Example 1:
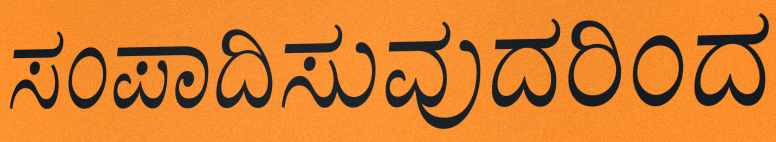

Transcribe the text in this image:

ಸಂಪಾದಿಸುವುದರಿಂದ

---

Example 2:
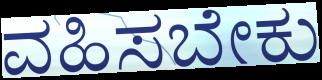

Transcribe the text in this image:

ವಹಿಸಬೇಕು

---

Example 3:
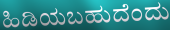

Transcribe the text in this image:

ಹಿಡಿಯಬಹುದೆಂದು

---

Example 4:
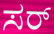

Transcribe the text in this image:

ಸರ್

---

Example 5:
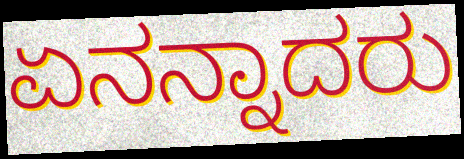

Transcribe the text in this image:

ಏನನ್ನಾದರು